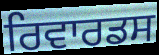
ਰਿਵਾਰਡਸ